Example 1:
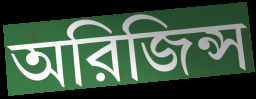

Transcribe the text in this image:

অরিজিন্স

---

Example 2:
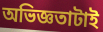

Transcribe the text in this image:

অভিজ্ঞতাটাই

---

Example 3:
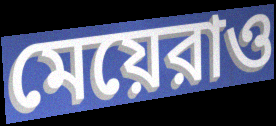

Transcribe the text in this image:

মেয়েরাও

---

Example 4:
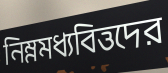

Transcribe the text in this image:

নিম্নমধ্যবিত্তদের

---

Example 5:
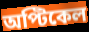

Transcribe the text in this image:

অপ্টিকেল